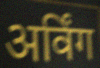
अर्विंग